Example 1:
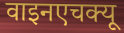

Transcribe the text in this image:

वाइनएचक्यू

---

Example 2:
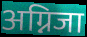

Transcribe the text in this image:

अग्निजा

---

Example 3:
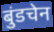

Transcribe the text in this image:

बुंडचेन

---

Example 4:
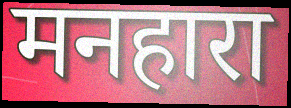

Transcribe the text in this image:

मनहारा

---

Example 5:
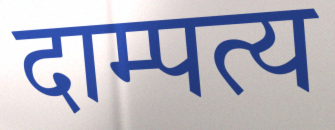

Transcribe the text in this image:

दाम्पत्य